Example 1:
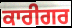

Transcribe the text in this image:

ਕਾਰੀਗਰ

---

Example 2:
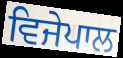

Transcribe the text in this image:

ਵਿਜੇਪਾਲ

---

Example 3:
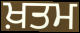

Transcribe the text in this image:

ਖ਼ਤਮ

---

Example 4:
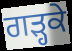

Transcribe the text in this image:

ਗੜ੍ਹਕੇ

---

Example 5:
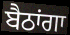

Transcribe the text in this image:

ਬੈਠਾਂਗਾ